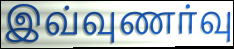
இவ்வுணர்வு